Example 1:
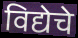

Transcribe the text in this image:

विद्येचे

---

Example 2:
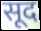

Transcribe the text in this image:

सूद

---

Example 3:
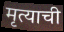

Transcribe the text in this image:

मृत्याची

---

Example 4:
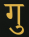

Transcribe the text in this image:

गु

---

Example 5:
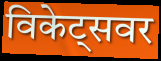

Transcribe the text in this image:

विकेट्सवर